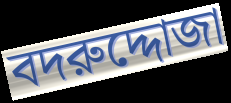
বদরুদ্দোজা